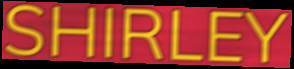
SHIRLEY